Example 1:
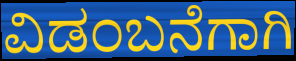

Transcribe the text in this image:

ವಿಡಂಬನೆಗಾಗಿ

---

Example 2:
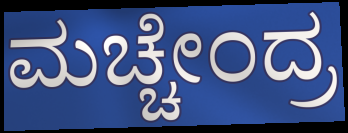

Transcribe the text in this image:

ಮಚ್ಚೇಂದ್ರ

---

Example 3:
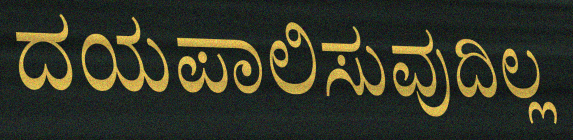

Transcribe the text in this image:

ದಯಪಾಲಿಸುವುದಿಲ್ಲ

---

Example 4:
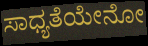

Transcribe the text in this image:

ಸಾಧ್ಯತೆಯೇನೋ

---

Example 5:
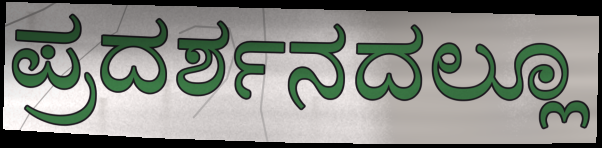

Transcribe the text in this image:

ಪ್ರದರ್ಶನದಲ್ಲೂ